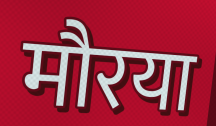
मौरया